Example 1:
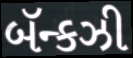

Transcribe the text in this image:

બૅન્કઝી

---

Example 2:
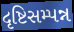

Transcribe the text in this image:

દૃષ્ટિસમ્પન્ન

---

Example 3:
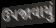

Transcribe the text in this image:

ઉપજાવાયું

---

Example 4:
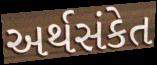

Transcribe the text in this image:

અર્થસંકેત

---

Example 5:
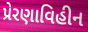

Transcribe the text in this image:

પ્રેરણાવિહીન